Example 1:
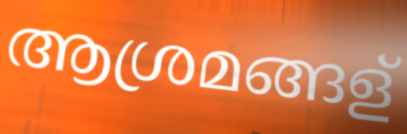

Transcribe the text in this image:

ആശ്രമങ്ങള്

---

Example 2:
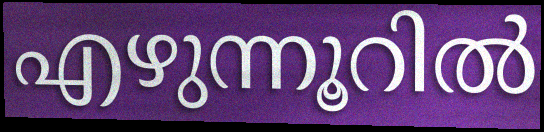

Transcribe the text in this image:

എഴുന്നൂറിൽ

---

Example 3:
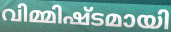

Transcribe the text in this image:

വിമ്മിഷ്ടമായി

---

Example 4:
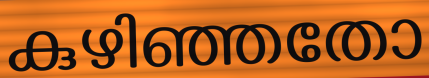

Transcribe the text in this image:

കുഴിഞ്ഞതോ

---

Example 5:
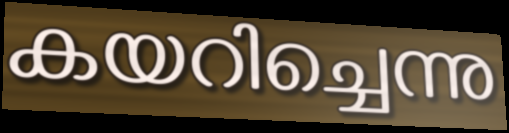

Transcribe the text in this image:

കയറിച്ചെന്നു